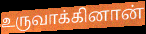
உருவாக்கினான்